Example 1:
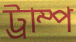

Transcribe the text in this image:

ট্রাম্প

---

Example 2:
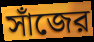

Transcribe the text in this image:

সাঁজের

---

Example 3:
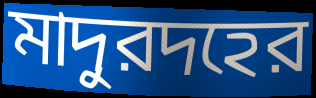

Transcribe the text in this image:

মাদুরদহের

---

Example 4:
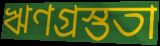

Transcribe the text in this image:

ঋণগ্রস্ততা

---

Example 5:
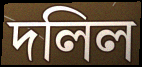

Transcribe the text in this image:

দলিল